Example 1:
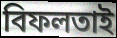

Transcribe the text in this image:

বিফলতাই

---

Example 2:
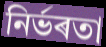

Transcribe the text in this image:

নিৰ্ভৰতা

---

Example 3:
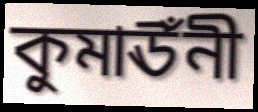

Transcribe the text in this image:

কুমাঊঁনী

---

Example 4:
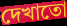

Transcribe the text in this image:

দেখাতো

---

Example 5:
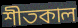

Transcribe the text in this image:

শীতকাল